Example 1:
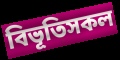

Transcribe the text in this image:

বিভূতিসকল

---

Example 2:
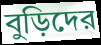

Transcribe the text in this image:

বুড়িদের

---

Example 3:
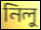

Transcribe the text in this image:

নিলু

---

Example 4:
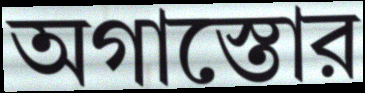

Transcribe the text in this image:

অগাস্তোর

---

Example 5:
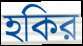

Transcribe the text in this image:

হকির